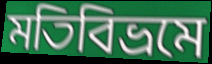
মতিবিভ্রমে